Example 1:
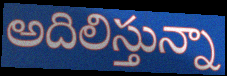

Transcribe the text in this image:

అదిలిస్తున్నా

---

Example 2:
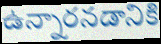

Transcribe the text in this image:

ఉన్నారనడానికి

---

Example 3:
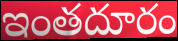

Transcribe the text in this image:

ఇంతదూరం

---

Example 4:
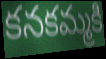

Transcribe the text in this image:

కనకమ్మకి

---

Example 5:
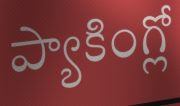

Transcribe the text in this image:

ప్యాకింగ్లో